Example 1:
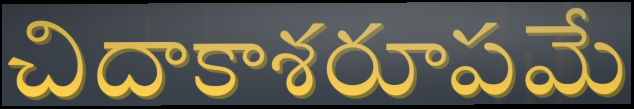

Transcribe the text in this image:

చిదాకాశరూపమే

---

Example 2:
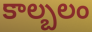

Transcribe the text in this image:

కాల్బలం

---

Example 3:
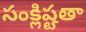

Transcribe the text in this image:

సంక్లిష్టతా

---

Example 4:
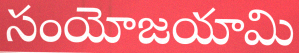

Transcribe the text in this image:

సంయోజయామి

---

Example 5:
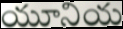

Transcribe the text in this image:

యూనియ